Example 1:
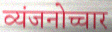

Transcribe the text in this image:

व्यंजनोच्चार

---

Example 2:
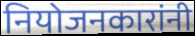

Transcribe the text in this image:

नियोजनकारांनी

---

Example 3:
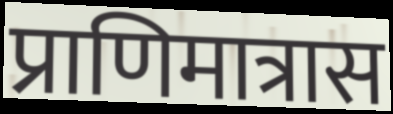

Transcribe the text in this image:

प्राणिमात्रास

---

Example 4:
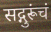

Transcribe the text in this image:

सद्गुरूंचं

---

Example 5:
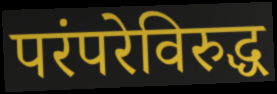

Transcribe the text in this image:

परंपरेविरुद्ध